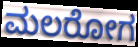
ಮಲರೋಗ